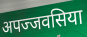
अपज्जवसिया